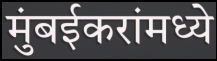
मुंबईकरांमध्ये